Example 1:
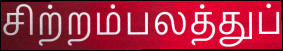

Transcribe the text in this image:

சிற்றம்பலத்துப்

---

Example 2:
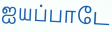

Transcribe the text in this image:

ஐயப்பாடே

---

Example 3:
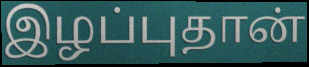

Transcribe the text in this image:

இழப்புதான்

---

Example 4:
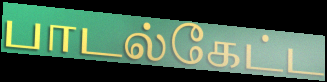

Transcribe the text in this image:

பாடல்கேட்ட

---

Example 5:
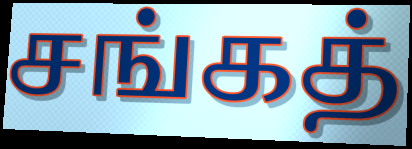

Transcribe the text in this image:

சங்கத்